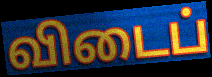
விடைப்